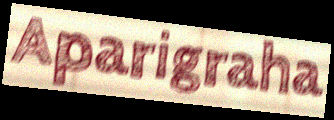
Aparigraha